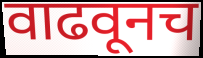
वाढवूनच